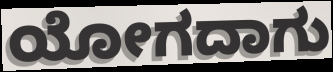
ಯೋಗದಾಗು